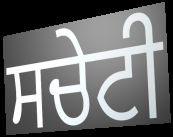
ਸਚੇਟੀ